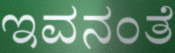
ಇವನಂತೆ